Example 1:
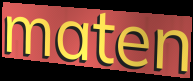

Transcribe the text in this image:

maten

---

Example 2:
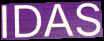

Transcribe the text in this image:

IDAS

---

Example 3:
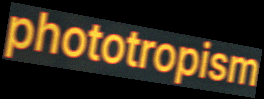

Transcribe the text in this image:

phototropism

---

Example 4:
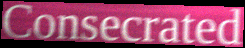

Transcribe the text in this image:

Consecrated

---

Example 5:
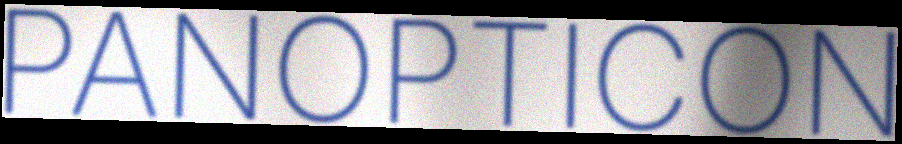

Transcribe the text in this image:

PANOPTICON